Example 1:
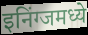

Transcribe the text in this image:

इनिंग्जमध्ये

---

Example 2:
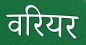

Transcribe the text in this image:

वरियर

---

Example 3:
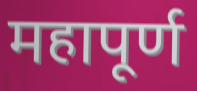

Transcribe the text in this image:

महापूर्ण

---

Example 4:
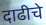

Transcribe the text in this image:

दाढीचे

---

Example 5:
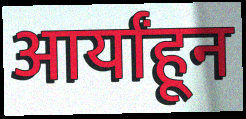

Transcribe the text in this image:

आर्यांहून